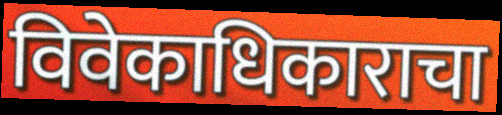
विवेकाधिकाराचा